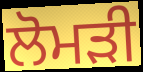
ਲੋਮੜੀ